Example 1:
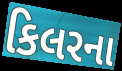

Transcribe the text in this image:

કિલરના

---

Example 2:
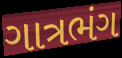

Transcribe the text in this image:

ગાત્રભંગ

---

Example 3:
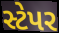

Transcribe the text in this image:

સ્ટેપર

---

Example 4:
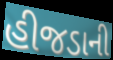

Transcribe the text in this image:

હીજડાની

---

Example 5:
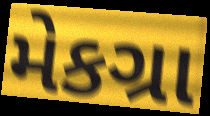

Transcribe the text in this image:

મેકગ્રા